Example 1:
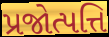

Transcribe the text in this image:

પ્રજોત્પત્તિ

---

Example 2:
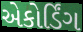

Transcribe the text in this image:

એકોર્ડિંગ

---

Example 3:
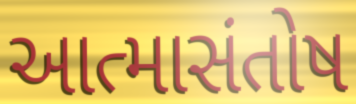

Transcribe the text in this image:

આત્માસંતોષ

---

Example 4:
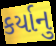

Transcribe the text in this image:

કર્યાનુ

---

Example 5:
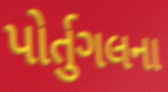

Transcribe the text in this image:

પોર્તુગલના